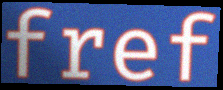
fref